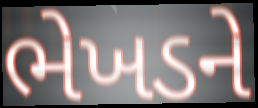
ભેખડને